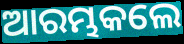
ଆରମ୍ଭକଲେ